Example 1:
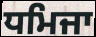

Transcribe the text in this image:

ਧਮਿਜਾ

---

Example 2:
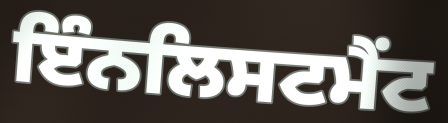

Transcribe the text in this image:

ਇੰਨਲਿਸਟਮੈਂਟ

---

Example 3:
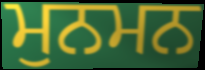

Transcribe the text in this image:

ਮੁਨਮਨ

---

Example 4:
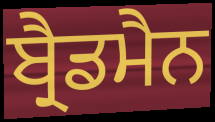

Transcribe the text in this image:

ਬ੍ਰੈਡਮੈਨ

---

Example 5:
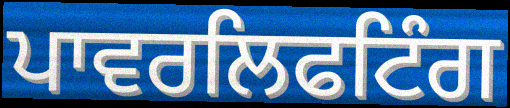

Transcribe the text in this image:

ਪਾਵਰਲਿਫਟਿੰਗ